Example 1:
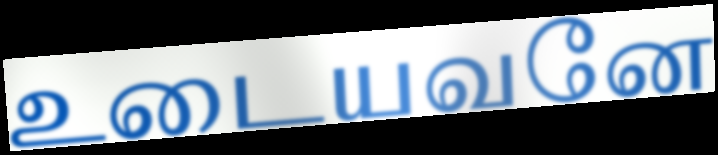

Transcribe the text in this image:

உடையவனே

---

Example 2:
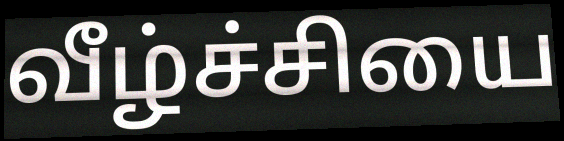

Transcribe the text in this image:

வீழ்ச்சியை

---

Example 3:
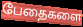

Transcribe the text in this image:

பேதைகளை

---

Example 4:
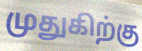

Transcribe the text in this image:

முதுகிற்கு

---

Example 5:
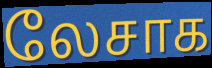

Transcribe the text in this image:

லேசாக